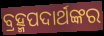
ବ୍ରହ୍ମପଦାର୍ଥଙ୍କର